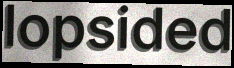
lopsided